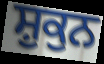
ਸ਼ੁਕੁਨ